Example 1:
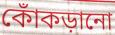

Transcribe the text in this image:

কোঁকড়ানো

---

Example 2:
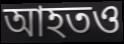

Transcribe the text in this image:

আহতও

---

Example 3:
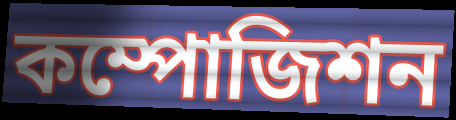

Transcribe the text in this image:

কম্পোজিশন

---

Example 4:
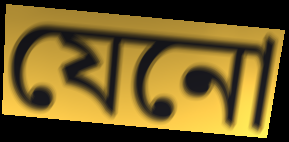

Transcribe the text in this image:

যেনো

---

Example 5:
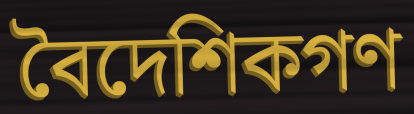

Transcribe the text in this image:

বৈদেশিকগণ